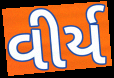
વીર્ય